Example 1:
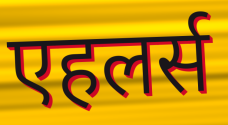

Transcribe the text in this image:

एहलर्स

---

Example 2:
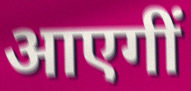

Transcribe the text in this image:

आएगीं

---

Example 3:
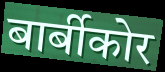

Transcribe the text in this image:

बार्बीकोर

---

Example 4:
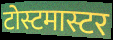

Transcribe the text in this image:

टोस्टमास्टर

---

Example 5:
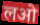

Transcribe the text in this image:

लओ